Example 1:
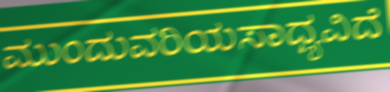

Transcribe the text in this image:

ಮುಂದುವರಿಯಸಾಧ್ಯವಿದೆ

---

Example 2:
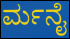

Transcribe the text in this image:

ರ್ಮನೈ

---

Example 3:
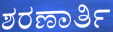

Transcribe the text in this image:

ಶರಣಾರ್ತಿ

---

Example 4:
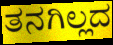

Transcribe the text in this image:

ತನಗಿಲ್ಲದ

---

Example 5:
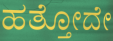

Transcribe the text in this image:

ಹತ್ತೋದೇ